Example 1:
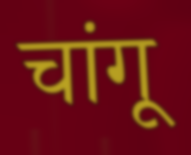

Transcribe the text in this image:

चांगू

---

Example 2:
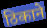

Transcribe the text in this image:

ठिकाने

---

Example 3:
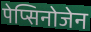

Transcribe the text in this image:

पेप्सिनोजेन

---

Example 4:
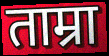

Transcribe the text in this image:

ताम्रा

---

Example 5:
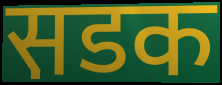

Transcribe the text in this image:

स़डक